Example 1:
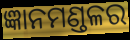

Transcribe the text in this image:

ଜ୍ଞାନମଣ୍ଡଳର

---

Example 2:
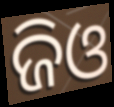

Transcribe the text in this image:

ଜିଓ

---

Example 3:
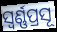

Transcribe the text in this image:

ସ୍ଵର୍ଣ୍ଣପ୍ରସୂ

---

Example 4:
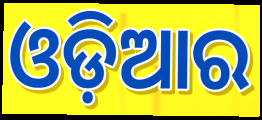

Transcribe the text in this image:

ଓଡ଼ିଆର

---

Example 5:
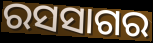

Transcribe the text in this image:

ରସସାଗର